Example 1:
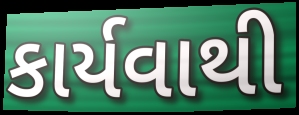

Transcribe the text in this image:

કાર્યવાથી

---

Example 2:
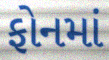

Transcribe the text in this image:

ફોનમાં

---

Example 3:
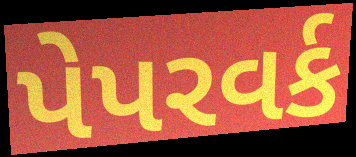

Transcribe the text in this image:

પેપરવર્ક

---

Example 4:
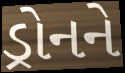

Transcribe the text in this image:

ડ્રોનને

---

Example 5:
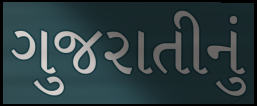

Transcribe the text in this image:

ગુજરાતીનું